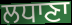
ਲਧਾਣਾ